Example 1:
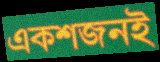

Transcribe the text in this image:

একশজনই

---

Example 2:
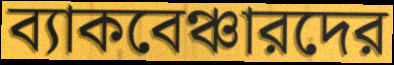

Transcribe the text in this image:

ব্যাকবেঞ্চারদের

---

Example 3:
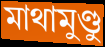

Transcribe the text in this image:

মাথামুণ্ডু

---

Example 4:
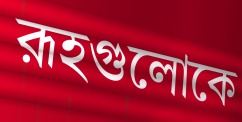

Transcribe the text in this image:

রূহগুলোকে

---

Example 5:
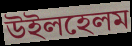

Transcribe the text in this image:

উইলহেলম